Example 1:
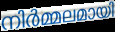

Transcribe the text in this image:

നിർമ്മലമായി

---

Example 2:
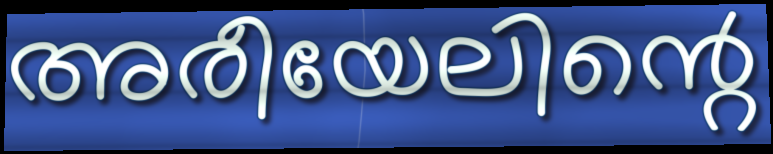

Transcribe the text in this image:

അരീയേലിന്റെ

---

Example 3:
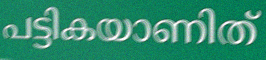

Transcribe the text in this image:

പട്ടികയാണിത്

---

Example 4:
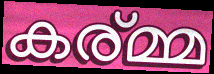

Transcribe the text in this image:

കര്മ്മ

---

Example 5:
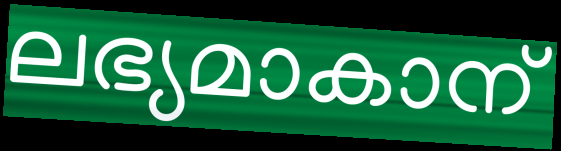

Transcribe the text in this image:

ലഭ്യമാകാന്